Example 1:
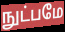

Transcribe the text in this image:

நுட்பமே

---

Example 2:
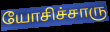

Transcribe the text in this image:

யோசிச்சாரு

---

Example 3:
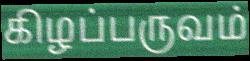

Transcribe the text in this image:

கிழப்பருவம்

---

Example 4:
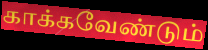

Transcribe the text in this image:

காக்கவேண்டும்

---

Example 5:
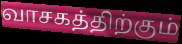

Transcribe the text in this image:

வாசகத்திற்கும்